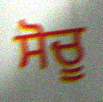
ਸੋਚੂ